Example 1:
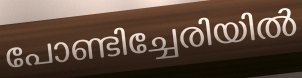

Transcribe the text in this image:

പോണ്ടിച്ചേരിയിൽ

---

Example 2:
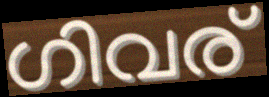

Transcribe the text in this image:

ഗിവര്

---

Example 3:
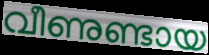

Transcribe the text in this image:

വീണുണ്ടായ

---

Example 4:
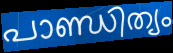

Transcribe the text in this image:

പാണ്ഡിത്യം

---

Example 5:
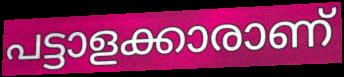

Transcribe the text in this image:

പട്ടാളക്കാരാണ്